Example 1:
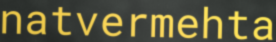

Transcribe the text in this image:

natvermehta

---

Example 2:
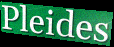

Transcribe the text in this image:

Pleides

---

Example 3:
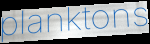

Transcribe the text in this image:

planktons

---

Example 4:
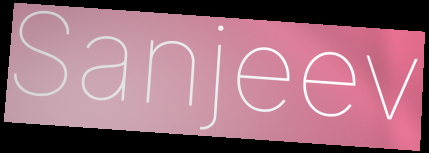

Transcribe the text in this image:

Sanjeev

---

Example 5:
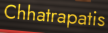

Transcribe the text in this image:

Chhatrapatis